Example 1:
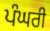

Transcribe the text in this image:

ਪੰਘਰੀ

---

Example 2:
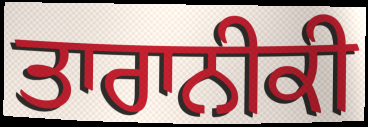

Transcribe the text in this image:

ਤਾਰਾਨੀਕੀ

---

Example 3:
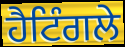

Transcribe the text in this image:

ਹੈਟਿੰਗਲੇ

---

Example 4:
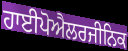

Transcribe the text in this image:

ਹਾਈਪੋਐਲਰਜੀਨਿਕ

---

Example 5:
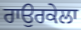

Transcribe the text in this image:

ਰਾਉਰਕੇਲਾ